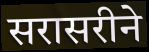
सरासरीने